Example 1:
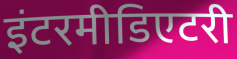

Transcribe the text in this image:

इंटरमीडिएटरी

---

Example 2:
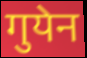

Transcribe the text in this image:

गुयेन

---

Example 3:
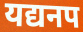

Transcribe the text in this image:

यद्यनप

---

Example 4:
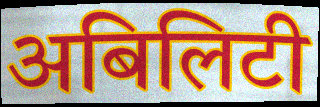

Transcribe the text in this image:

अबिलिटी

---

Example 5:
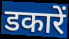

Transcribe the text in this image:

डकारें